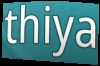
thiya